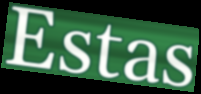
Estas